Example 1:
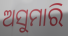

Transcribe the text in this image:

ଅସୁମାରି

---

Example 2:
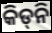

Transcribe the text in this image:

କିଡ୍‌ନି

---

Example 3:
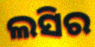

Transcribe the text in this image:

ଲସିର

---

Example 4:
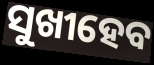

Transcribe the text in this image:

ସୁଖୀହେବ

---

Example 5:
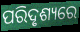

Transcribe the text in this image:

ପରିଦୃଶ୍ୟରେ